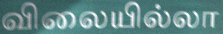
விலையில்லா